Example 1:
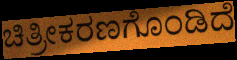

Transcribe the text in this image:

ಚಿತ್ರೀಕರಣಗೊಂಡಿದೆ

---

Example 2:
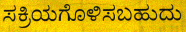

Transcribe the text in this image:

ಸಕ್ರಿಯಗೊಳಿಸಬಹುದು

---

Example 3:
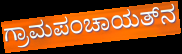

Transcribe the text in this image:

ಗ್ರಾಮಪಂಚಾಯತ್‌ನ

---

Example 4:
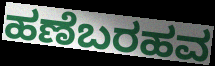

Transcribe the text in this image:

ಹಣೆಬರಹವ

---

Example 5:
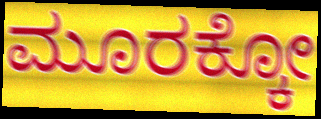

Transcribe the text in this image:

ಮೂರಕ್ಕೋ